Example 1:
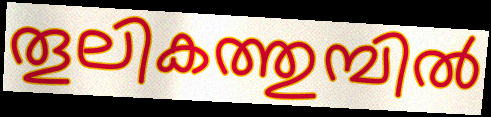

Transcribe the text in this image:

തൂലികത്തുമ്പിൽ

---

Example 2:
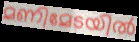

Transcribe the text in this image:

മണിമേടയിൽ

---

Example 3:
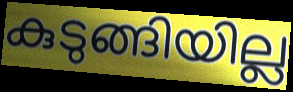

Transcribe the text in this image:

കുടുങ്ങിയില്ല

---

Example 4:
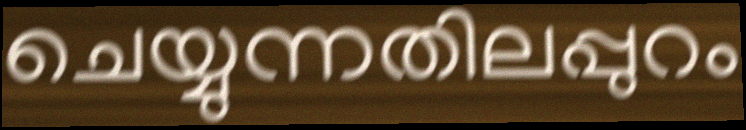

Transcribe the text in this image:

ചെയ്യുന്നതിലപ്പുറം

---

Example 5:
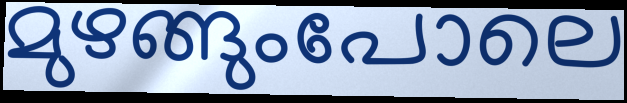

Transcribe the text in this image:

മുഴങ്ങുംപോലെ